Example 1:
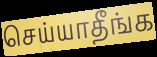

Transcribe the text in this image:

செய்யாதீங்க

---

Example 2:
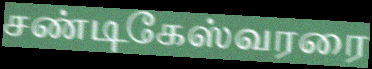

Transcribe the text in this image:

சண்டிகேஸ்வரரை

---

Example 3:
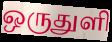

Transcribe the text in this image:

ஒருதுளி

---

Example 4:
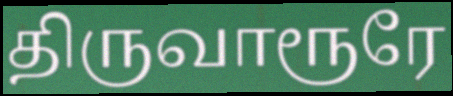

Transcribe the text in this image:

திருவாரூரே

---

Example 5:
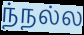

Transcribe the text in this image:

ந்நல்ல